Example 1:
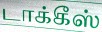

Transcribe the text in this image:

டாக்கீஸ்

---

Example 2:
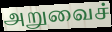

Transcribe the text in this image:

அறுவைச்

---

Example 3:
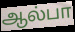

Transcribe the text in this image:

ஆல்பா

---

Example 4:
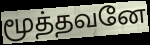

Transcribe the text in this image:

மூத்தவனே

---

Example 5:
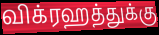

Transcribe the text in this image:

விக்ரஹத்துக்கு